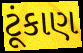
ટૂંકાણ